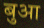
बुआ